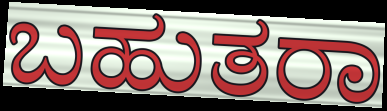
ಬಹುತರಾ